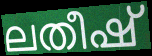
ലതീഷ്